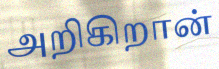
அறிகிறான்